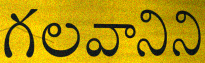
గలవానిని